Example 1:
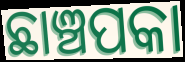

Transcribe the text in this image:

ଛାଞ୍ଚପକା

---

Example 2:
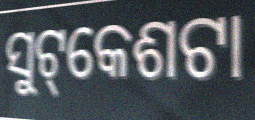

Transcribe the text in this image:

ସୁଟ୍‌କେଶଟା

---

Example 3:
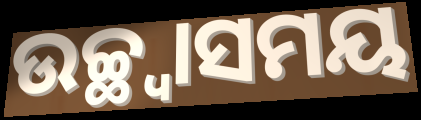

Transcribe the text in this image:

ଉଚ୍ଛ୍ୱାସମୟ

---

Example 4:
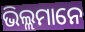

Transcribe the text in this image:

ଭିଲ୍ଲମାନେ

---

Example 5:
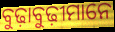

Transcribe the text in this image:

ବୁଢ଼ାବୁଢ଼ୀମାନେ